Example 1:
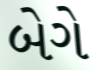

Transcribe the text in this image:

બેગે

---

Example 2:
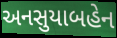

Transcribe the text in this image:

અનસુયાબહેન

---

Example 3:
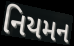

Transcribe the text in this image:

નિયમન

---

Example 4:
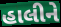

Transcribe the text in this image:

હાલીને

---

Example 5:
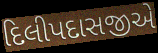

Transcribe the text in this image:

દિલીપદાસજીએ